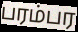
பரம்பர